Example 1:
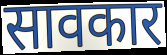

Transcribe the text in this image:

सावकार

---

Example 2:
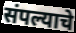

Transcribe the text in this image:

संपल्याचे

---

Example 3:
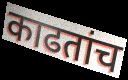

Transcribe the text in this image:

काढतांच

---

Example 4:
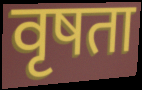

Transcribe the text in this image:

वृषता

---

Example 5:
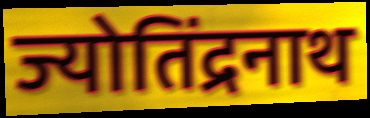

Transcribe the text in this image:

ज्योतिंद्रनाथ